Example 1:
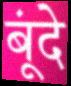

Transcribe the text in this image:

बूंदे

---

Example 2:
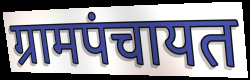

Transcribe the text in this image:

ग्रामपंचायत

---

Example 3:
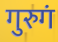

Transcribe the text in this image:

गुरुगं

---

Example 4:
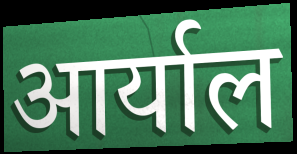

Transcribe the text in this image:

आर्याल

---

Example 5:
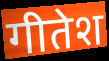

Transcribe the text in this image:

गीतेश